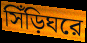
সিঁড়িঘরে